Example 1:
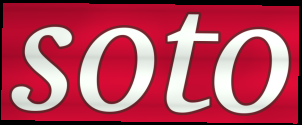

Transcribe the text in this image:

soto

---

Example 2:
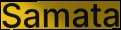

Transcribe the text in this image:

Samata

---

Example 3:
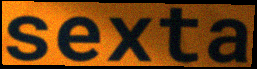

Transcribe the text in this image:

sexta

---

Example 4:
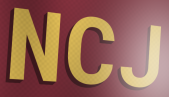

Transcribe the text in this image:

NCJ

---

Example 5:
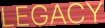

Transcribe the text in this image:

LEGACY